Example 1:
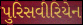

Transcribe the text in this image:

પુરિસવીરિયેન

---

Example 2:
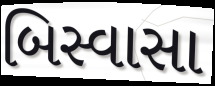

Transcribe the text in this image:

બિસ્વાસા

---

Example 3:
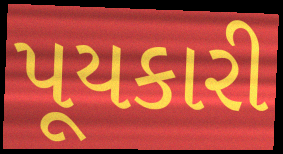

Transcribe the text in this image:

પૂયકારી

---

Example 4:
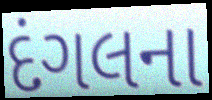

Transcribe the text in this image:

દંગલના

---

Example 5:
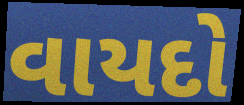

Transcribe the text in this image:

વાયદો